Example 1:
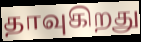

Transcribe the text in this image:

தாவுகிறது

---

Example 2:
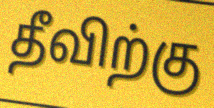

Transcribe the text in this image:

தீவிற்கு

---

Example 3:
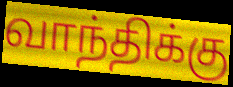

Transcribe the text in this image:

வாந்திக்கு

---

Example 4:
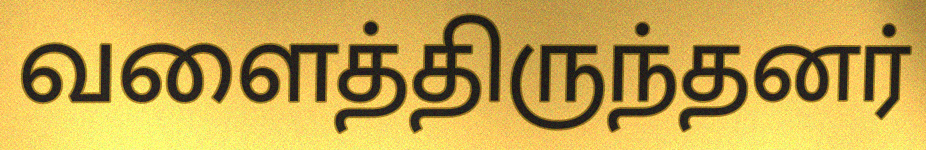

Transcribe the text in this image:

வளைத்திருந்தனர்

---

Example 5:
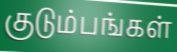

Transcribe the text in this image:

குடும்பங்கள்